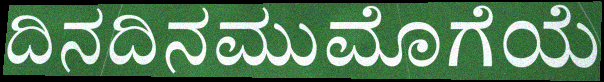
ದಿನದಿನಮುಮೊಗೆಯೆ